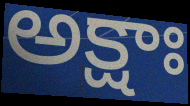
అక్షాః